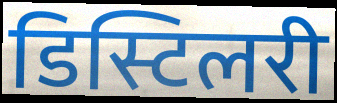
डिस्टिलरी